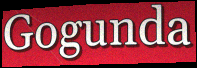
Gogunda